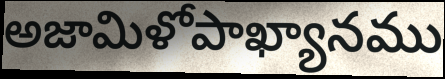
అజామిళోపాఖ్యానము